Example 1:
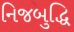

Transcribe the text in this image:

નિજબુદ્ધિ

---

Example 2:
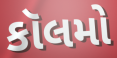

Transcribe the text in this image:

કૉલમો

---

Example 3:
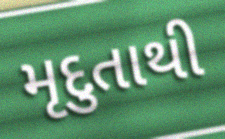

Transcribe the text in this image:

મૃદુતાથી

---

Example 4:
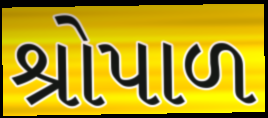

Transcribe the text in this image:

શ્રોપાળ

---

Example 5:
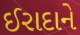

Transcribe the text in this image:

ઈરાદાને